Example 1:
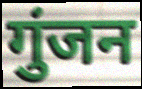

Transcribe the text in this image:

गुंजन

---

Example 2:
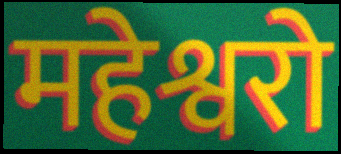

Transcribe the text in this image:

महेश्वरो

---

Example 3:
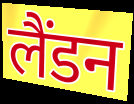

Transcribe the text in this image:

लैंडन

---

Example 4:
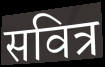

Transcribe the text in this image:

सवित्र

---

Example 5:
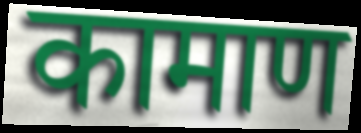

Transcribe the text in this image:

कामाण